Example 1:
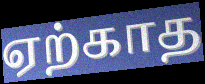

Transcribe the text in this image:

ஏற்காத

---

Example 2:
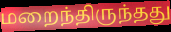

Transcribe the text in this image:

மறைந்திருந்தது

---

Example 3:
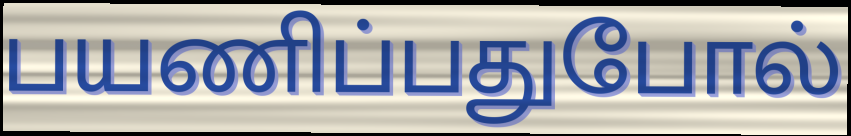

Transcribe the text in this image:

பயணிப்பதுபோல்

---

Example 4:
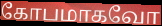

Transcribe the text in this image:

கோபமாகவோ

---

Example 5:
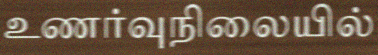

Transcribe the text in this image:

உணர்வுநிலையில்